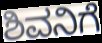
ಶಿವನಿಗೆ